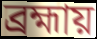
ব্রহ্মায়